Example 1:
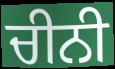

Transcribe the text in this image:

ਚੀਨੀ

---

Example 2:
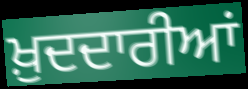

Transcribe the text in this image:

ਖ਼ੁਦਦਾਰੀਆਂ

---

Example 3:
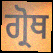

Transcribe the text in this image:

ਗ੍ਰੋਥ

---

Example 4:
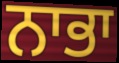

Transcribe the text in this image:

ਨਾਭਾ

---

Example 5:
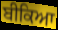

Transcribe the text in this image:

ਬੀਕਿਆ